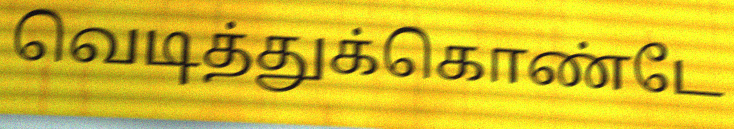
வெடித்துக்கொண்டே